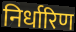
निर्धारिण